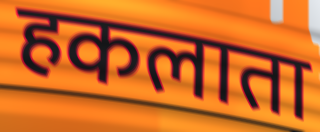
हकलाता